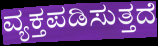
ವ್ಯಕ್ತಪಡಿಸುತ್ತದೆ